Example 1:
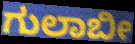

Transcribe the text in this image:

ಗುಲಾಬೀ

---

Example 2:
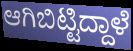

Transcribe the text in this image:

ಆಗಿಬಿಟ್ಟಿದ್ದಾಳೆ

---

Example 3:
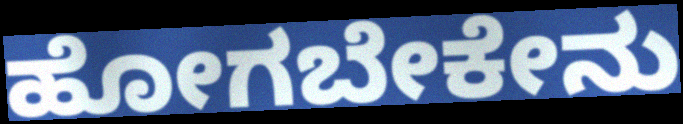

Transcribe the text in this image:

ಹೋಗಬೇಕೇನು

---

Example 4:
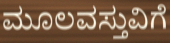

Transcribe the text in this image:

ಮೂಲವಸ್ತುವಿಗೆ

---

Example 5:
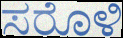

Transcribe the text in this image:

ಸರೊಳಿ